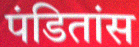
पंडितांस